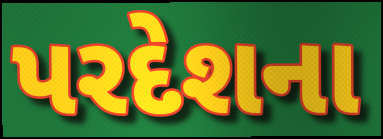
પરદેશના